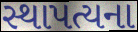
સ્થાપત્યના